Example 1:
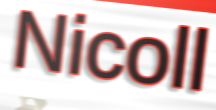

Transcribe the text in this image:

Nicoll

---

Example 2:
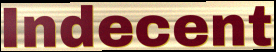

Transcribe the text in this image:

Indecent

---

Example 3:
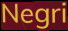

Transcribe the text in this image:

Negri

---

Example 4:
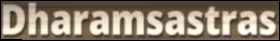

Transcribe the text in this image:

Dharamsastras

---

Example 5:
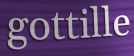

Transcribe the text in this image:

gottille